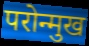
परोन्मुख